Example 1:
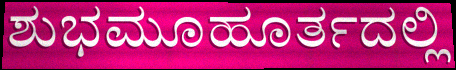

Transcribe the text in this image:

ಶುಭಮೂಹೂರ್ತದಲ್ಲಿ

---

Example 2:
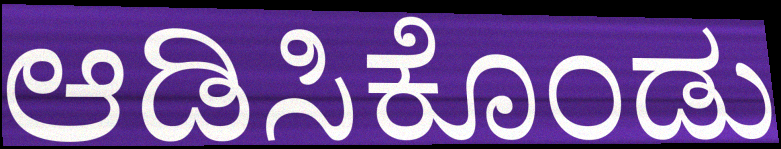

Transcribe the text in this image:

ಆಡಿಸಿಕೊಂಡು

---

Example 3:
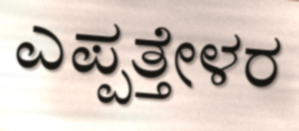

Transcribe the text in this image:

ಎಪ್ಪತ್ತೇಳರ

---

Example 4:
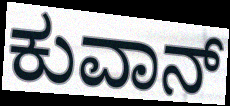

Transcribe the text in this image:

ಕುವಾನ್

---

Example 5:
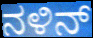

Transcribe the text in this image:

ನಳಿನ್